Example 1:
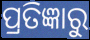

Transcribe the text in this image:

ପ୍ରତିଜ୍ଞାରୁ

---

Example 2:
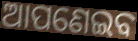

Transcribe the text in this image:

ଆପଣେଇବ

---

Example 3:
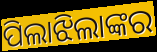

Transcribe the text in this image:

ପିଲାଝିଲାଙ୍କର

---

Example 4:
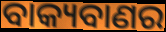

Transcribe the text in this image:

ବାକ୍ୟବାଣର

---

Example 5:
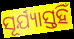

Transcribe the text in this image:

ସୂର୍ଯ୍ୟାସ୍ତହିଁ